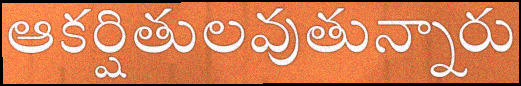
ఆకర్షితులవుతున్నారు